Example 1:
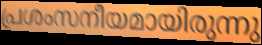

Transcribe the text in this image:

പ്രശംസനീയമായിരുന്നു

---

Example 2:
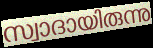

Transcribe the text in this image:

സ്വാദായിരുന്നു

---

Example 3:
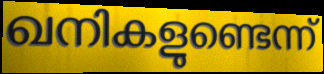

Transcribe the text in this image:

ഖനികളുണ്ടെന്ന്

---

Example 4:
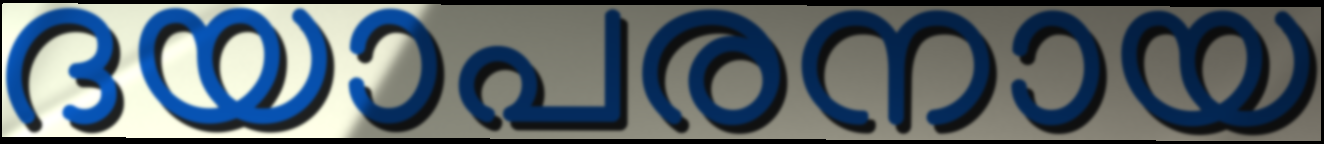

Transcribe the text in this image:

ദയാപരനായ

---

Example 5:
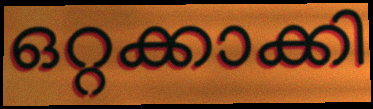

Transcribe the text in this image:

ഒറ്റക്കാക്കി